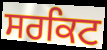
ਸਰਕਿਟ